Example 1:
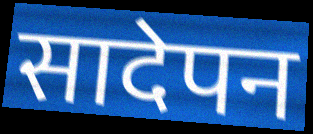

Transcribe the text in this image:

सादेपन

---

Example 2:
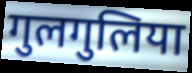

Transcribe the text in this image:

गुलगुलिया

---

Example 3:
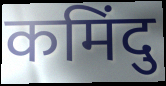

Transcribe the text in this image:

कमिंदु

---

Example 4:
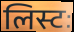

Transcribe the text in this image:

लिस्टः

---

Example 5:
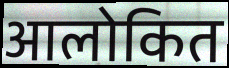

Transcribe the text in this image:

आलोकित